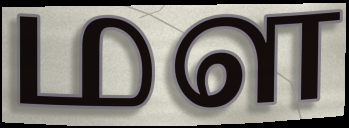
மள